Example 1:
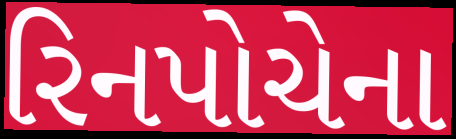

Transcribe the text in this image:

રિનપોચેના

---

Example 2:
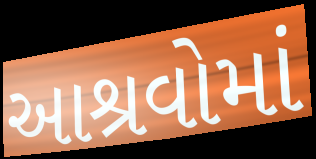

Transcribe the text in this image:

આશ્રવોમાં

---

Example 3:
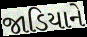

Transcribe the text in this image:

જાડિયાને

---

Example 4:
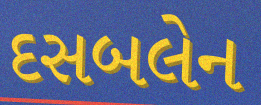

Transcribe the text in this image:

દસબલેન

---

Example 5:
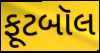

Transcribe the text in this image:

ફૂટબૉલ